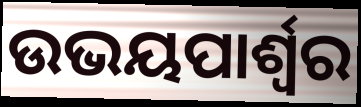
ଉଭୟପାର୍ଶ୍ୱର